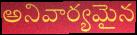
అనివార్యమైన